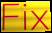
Fix